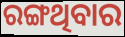
ରଙ୍ଗଥିବାର